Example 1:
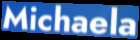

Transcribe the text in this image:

Michaela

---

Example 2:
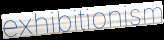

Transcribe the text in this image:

exhibitionism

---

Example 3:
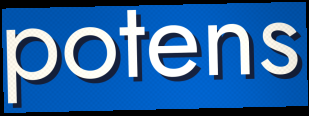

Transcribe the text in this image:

potens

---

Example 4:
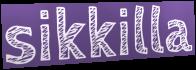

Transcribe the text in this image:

sikkilla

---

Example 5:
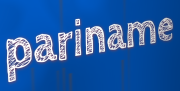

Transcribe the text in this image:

pariname